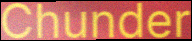
Chunder